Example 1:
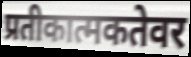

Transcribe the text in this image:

प्रतीकात्मकतेवर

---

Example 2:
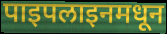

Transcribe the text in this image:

पाइपलाइनमधून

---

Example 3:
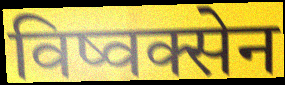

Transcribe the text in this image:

विष्वक्सेन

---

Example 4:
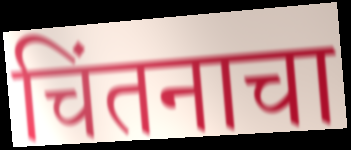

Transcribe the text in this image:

चिंतनाचा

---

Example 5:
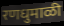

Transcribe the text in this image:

रणधुमाळी